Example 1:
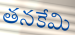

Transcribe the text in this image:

తనకేమి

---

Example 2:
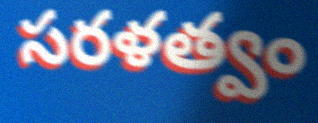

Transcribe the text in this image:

సరళత్వం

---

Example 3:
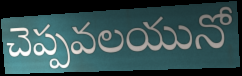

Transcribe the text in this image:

చెప్పవలయునో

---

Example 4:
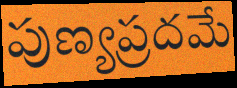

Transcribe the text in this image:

పుణ్యప్రదమే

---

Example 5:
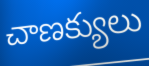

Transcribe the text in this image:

చాణక్యులు